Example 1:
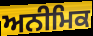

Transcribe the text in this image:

ਅਨੀਮਿਕ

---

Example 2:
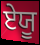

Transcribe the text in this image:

ਏਯੂ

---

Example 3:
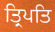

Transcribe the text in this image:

ਤ੍ਰਿਪਤਿ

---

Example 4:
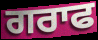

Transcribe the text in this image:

ਗਰਾਫ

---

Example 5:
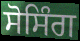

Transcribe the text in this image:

ਸੋਸਿੰਗ